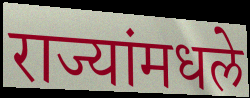
राज्यांमधले